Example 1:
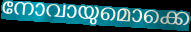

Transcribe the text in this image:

നോവായുമൊക്കെ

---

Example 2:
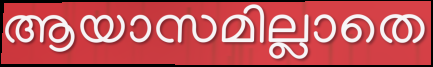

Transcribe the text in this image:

ആയാസമില്ലാതെ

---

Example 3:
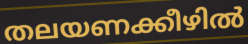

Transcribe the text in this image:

തലയണക്കീഴിൽ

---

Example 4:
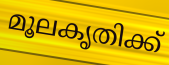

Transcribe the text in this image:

മൂലകൃതിക്ക്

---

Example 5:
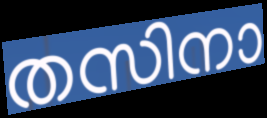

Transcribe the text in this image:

തസിനാ